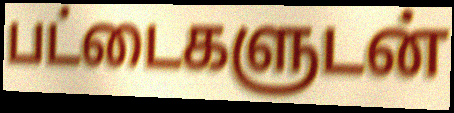
பட்டைகளுடன்